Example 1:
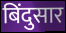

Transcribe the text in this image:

बिंदुसार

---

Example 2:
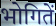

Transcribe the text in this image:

भोगितें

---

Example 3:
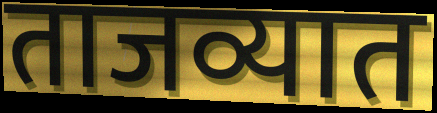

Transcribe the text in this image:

ताजव्यात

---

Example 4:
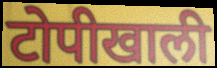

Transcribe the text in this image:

टोपीखाली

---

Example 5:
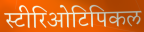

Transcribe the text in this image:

स्टीरिओटिपिकल